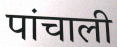
पांचाली